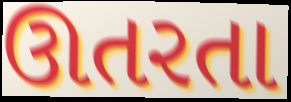
ઊતરતા